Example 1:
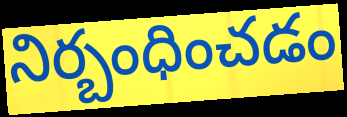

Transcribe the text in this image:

నిర్బంధించడం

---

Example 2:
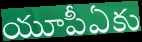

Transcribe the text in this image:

యూపీఏకు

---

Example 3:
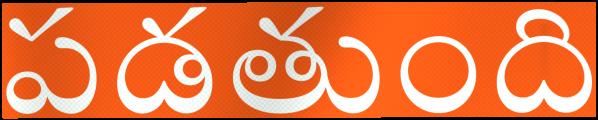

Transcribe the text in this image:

పడతుంది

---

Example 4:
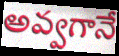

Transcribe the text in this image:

అవ్వగానే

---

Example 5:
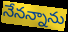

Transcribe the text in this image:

నేనన్నాను